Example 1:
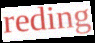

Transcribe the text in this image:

reding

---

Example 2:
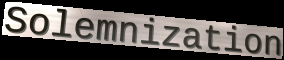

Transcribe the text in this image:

Solemnization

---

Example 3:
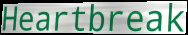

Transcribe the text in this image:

Heartbreak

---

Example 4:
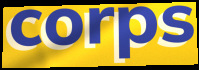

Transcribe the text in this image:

corps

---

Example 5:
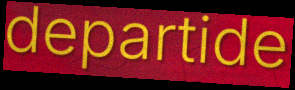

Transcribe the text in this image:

departide